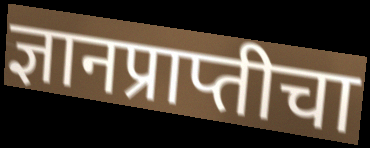
ज्ञानप्राप्तीचा